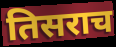
तिसराच